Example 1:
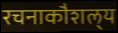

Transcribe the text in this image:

रचनाकौशल्य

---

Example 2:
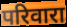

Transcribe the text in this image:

परिवारा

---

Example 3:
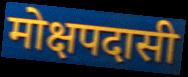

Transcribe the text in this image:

मोक्षपदासी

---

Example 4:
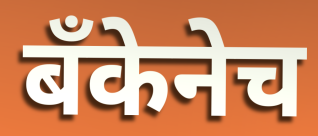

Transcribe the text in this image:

बँकेनेच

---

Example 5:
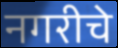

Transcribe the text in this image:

नगरीचे